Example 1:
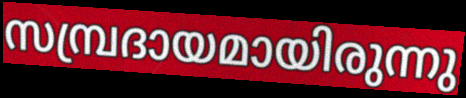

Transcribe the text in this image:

സമ്പ്രദായമായിരുന്നു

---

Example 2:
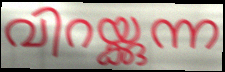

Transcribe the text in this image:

വിറയ്ക്കുന്ന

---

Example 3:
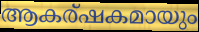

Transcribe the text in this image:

ആകര്ഷകമായും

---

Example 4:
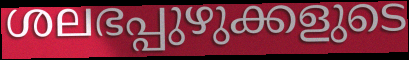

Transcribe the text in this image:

ശലഭപ്പുഴുക്കളുടെ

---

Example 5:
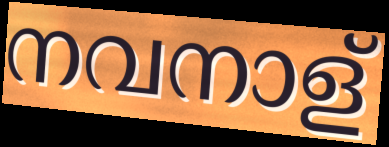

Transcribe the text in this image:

നവനാള്